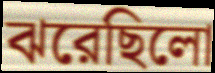
ঝরেছিলো